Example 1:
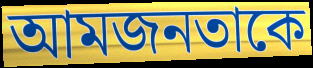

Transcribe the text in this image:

আমজনতাকে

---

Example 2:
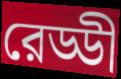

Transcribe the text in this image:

রেড্ডী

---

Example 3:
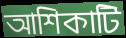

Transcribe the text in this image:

আশিকাটি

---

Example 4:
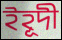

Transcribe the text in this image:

ইহূদী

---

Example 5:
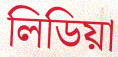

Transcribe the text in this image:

লিডিয়া